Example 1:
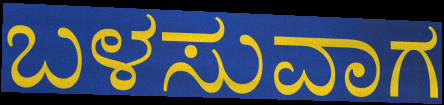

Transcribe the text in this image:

ಬಳಸುವಾಗ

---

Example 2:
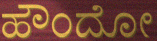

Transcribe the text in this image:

ಹೌಂದೋ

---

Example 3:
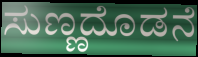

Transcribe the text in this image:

ಸುಣ್ಣದೊಡನೆ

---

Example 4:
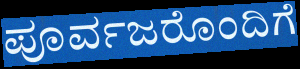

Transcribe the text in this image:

ಪೂರ್ವಜರೊಂದಿಗೆ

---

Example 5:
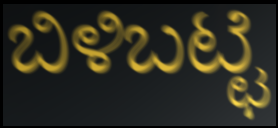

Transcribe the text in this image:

ಬಿಳಿಬಟ್ಟೆ